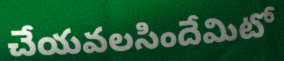
చేయవలసిందేమిటో